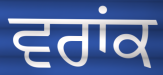
ਵਰਾਂਕ